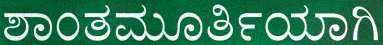
ಶಾಂತಮೂರ್ತಿಯಾಗಿ